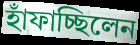
হাঁফাচ্ছিলেন